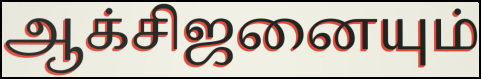
ஆக்சிஜனையும்